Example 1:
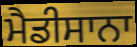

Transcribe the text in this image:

ਮੈਡੀਸਾਨਾ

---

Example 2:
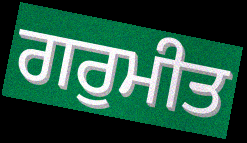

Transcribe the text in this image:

ਗਰੁਮੀਤ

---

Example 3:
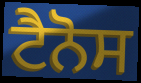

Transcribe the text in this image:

ਟੈਨੋਸ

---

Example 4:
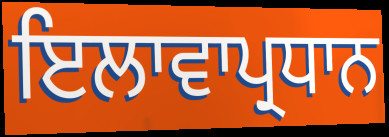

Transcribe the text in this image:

ਇਲਾਵਾਪ੍ਰਧਾਨ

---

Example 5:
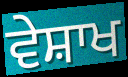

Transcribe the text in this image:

ਵੇਸ਼ਾਖ